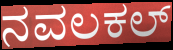
ನವಲಕಲ್